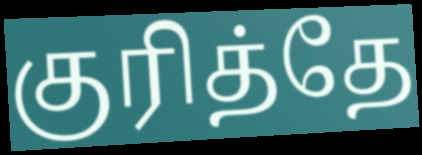
குரித்தே